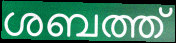
ശബത്ത്